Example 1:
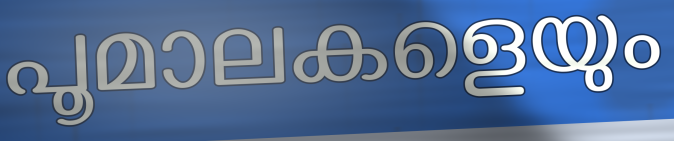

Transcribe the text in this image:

പൂമാലകളെയും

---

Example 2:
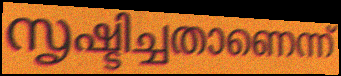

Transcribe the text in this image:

സൃഷ്ടിച്ചതാണെന്ന്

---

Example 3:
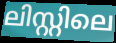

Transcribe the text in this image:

ലിസ്റ്റിലെ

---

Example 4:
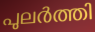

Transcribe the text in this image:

പുലർത്തി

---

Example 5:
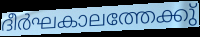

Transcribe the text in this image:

ദീർഘകാലത്തേക്കു്